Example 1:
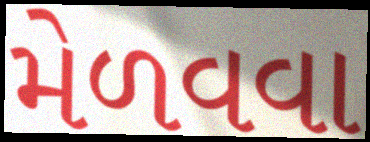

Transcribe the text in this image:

મેળવવા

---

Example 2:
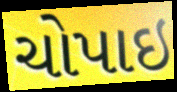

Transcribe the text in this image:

ચોપાઇ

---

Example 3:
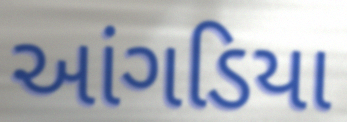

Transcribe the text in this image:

આંગડિયા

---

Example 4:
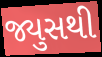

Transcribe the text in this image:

જ્યુસથી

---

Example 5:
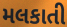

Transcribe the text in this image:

મલકાતી